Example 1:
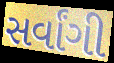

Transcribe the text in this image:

સર્વાંગી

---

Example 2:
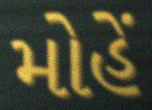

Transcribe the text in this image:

મોહેં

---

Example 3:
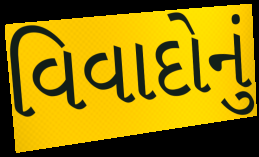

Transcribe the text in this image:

વિવાદોનું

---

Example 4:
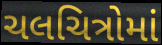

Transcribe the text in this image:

ચલચિત્રોમાં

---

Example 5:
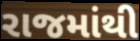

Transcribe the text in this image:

રાજમાંથી